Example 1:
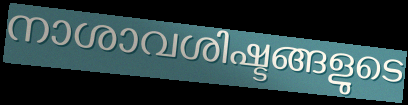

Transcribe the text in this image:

നാശാവശിഷ്ടങ്ങളുടെ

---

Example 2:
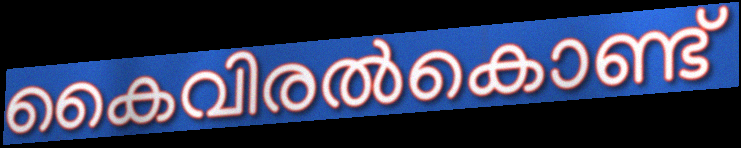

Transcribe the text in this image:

കൈവിരൽകൊണ്ട്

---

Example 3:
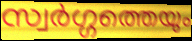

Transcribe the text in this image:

സ്വർഗ്ഗത്തെയും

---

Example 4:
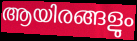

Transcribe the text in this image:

ആയിരങ്ങളും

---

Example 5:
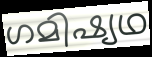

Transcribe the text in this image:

ഗമിഷ്യഥ